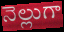
నెల్లుగా